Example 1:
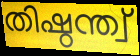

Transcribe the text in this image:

തിഷ്ഠന്ത്വ്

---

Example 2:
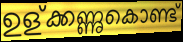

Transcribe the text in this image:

ഉള്ക്കണ്ണുകൊണ്ട്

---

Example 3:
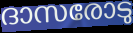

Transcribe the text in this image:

ദാസരോടു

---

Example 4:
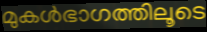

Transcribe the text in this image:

മുകൾഭാഗത്തിലൂടെ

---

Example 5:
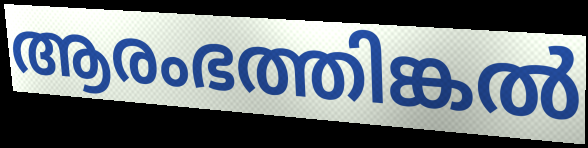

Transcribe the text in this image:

ആരംഭത്തിങ്കൽ